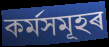
কৰ্মসমূহৰ